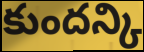
కుందన్కి